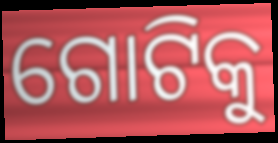
ଗୋଟିକୁ